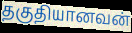
தகுதியானவன்